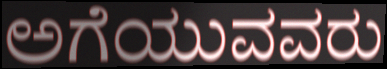
ಅಗೆಯುವವರು